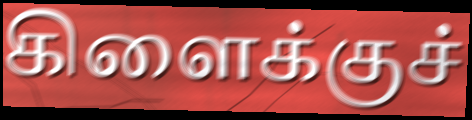
கிளைக்குச்